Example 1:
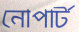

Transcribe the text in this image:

নোপার্ট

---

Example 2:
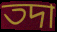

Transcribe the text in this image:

তদা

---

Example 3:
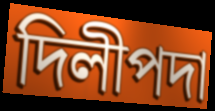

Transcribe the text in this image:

দিলীপদা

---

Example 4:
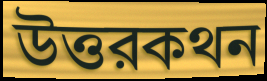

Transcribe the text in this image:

উত্তরকথন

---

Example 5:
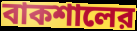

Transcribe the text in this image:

বাকশালের